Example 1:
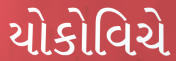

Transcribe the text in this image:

યોકોવિચે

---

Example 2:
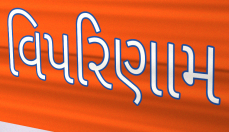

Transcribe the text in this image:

વિપરિણામ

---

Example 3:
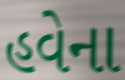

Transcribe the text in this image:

હવેના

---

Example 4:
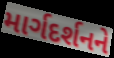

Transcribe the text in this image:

માર્ગદર્શનને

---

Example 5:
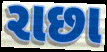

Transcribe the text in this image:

રાછા